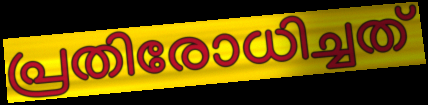
പ്രതിരോധിച്ചത്